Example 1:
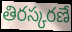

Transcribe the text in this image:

తిరస్కరణే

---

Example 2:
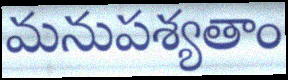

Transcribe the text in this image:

మనుపశ్యతాం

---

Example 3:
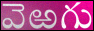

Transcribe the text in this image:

వెఱగు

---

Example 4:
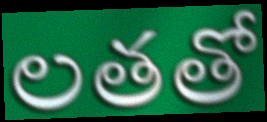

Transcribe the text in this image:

లతతో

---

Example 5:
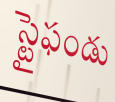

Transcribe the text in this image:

స్టైఫండు